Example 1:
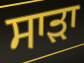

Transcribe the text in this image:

ਸਾੜਾ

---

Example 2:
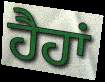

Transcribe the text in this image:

ਹੈਹਾਂ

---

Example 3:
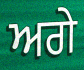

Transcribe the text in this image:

ਅਗੇ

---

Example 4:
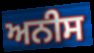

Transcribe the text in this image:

ਅਨੀਸ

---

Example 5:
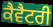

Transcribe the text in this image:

ਕੈਵੈਟਰੀ